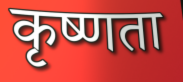
कृष्णता